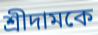
শ্রীদামকে